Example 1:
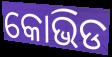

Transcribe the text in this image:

କୋଭିଡ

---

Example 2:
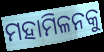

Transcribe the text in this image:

ମହାମିଳନକୁ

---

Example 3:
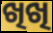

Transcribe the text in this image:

ଖିଖି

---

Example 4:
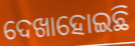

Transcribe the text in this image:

ଦେଖାହୋଇଛି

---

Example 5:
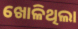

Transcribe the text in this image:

ଖୋଳିଥିଲା